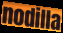
nodilla